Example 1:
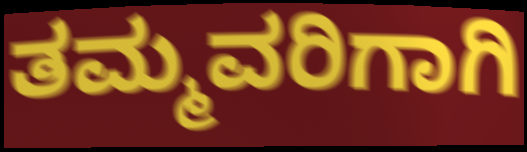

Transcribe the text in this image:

ತಮ್ಮವರಿಗಾಗಿ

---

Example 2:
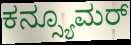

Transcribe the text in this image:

ಕನ್ಸ್ಯೂಮರ್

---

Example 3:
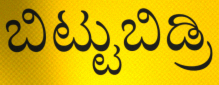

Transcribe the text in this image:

ಬಿಟ್ಟುಬಿಡ್ರಿ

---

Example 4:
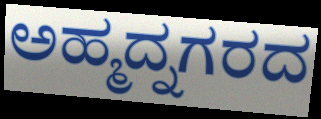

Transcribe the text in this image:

ಅಹ್ಮದ್ನಗರದ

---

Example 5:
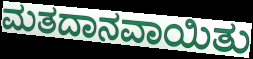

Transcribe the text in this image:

ಮತದಾನವಾಯಿತು